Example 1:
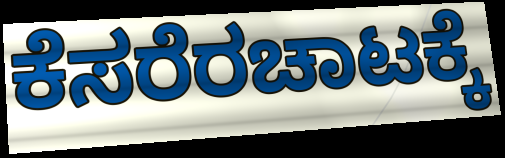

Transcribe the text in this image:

ಕೆಸರೆರಚಾಟಕ್ಕೆ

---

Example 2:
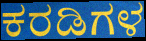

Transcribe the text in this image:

ಕರಡಿಗಳ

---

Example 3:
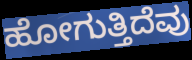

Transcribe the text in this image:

ಹೋಗುತ್ತಿದೆವು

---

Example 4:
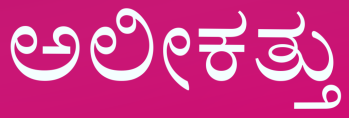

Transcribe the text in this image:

ಅಲೀಕತ್ತು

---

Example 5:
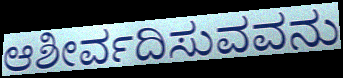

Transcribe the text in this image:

ಆಶೀರ್ವದಿಸುವವನು